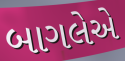
બાગલેએ